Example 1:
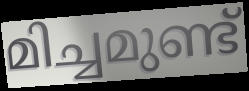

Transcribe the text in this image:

മിച്ചമുണ്ട്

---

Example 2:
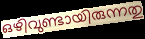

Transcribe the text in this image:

ഒഴിവുണ്ടായിരുന്നതു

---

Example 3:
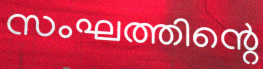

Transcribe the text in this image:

സംഘത്തിന്റെ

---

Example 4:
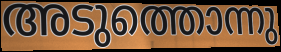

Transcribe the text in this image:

അടുത്തൊന്നു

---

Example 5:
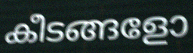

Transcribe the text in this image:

കീടങ്ങളോ